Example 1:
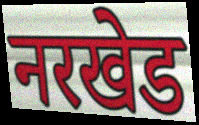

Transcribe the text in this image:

नरखेड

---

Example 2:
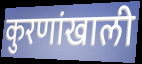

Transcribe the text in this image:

कुरणांखाली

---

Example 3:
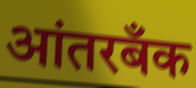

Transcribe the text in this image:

आंतरबँक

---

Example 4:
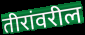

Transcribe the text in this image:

तीरांवरील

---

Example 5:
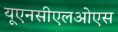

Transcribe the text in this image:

यूएनसीएलओएस